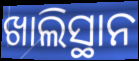
ଖାଲିସ୍ଥାନ